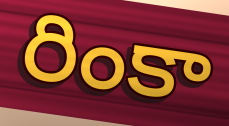
రింకా